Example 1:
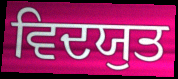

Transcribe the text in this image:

ਵਿਦਯੁਤ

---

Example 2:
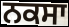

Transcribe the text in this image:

ਨਕਸਾ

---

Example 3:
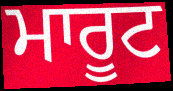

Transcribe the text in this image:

ਮਾਰੂਟ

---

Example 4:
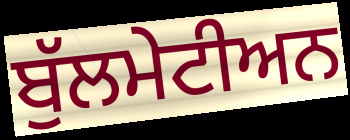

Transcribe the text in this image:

ਬੁੱਲਮੇਟੀਅਨ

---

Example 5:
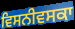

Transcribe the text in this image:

ਵਿਸਨੀਵਸਕਾ